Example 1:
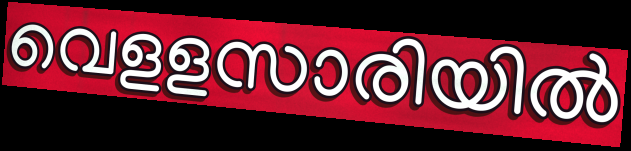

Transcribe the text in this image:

വെളളസാരിയിൽ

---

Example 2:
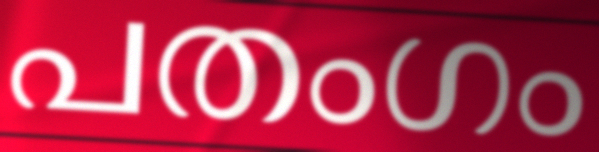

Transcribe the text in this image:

പതംഗം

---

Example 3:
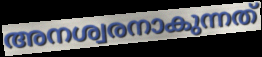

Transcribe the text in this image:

അനശ്വരനാകുന്നത്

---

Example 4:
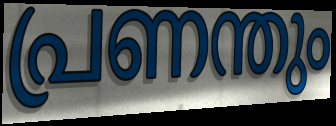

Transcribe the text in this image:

പ്രണന്തും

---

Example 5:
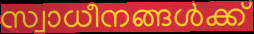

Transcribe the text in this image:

സ്വാധീനങ്ങൾക്ക്